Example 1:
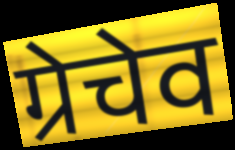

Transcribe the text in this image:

ग्रेचेव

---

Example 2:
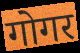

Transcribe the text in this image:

गोगर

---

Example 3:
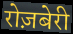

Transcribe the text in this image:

रोज़बेरी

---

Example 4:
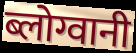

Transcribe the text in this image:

ब्लोग्वानी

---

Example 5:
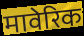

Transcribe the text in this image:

मावेरिक